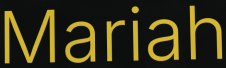
Mariah